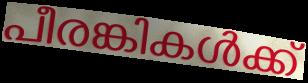
പീരങ്കികൾക്ക്